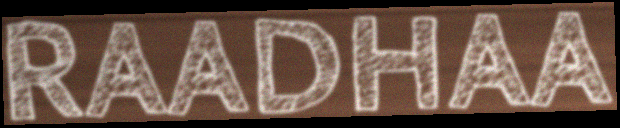
RAADHAA